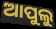
ଆପୁଲୁ